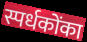
स्पर्धकोंका